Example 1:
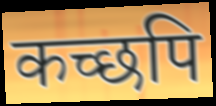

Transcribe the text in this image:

कच्छपि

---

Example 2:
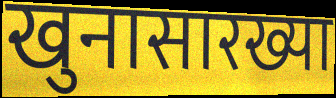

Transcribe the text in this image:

खुनासारख्या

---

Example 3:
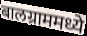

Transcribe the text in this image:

बालग्राममध्ये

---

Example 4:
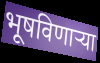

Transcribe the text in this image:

भूषविणार्‍या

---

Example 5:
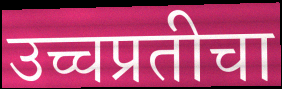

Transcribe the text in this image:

उच्चप्रतीचा